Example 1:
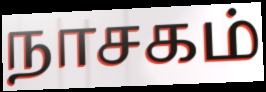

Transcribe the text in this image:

நாசகம்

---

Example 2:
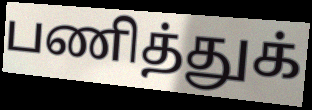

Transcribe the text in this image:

பணித்துக்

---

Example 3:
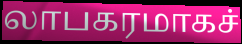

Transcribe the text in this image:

லாபகரமாகச்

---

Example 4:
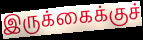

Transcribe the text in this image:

இருக்கைக்குச்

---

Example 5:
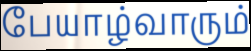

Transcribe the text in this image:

பேயாழ்வாரும்